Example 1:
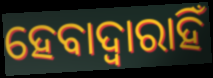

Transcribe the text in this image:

ହେବାଦ୍ଵାରାହିଁ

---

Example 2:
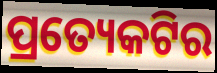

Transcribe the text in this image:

ପ୍ରତ୍ୟେକଟିର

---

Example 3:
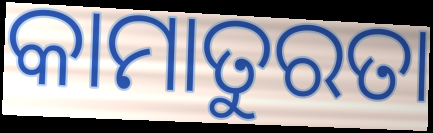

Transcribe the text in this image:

କାମାତୁରତା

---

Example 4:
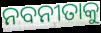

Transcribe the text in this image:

ନବନୀତାକୁ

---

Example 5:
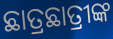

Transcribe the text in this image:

ଛାତ୍ରଛାତ୍ରୀଙ୍କ